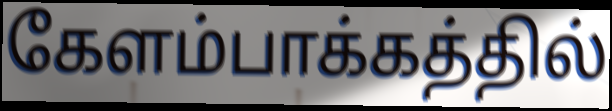
கேளம்பாக்கத்தில்